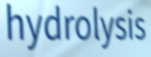
hydrolysis